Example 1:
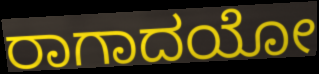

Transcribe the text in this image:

ರಾಗಾದಯೋ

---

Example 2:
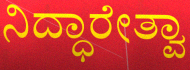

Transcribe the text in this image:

ನಿದ್ಧಾರೇತ್ವಾ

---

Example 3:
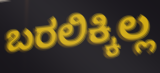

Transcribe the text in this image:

ಬರಲಿಕ್ಕಿಲ್ಲ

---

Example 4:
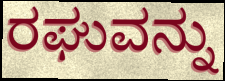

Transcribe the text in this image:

ರಘುವನ್ನು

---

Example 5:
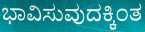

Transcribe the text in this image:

ಭಾವಿಸುವುದಕ್ಕಿಂತ